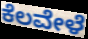
ಕೆಲವೇಳೆ